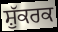
ਸ਼ੁੱਕਰਕ